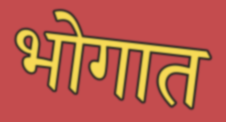
भोगात